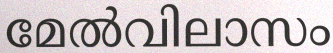
മേൽവിലാസം